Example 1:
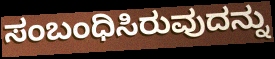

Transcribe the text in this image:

ಸಂಬಂಧಿಸಿರುವುದನ್ನು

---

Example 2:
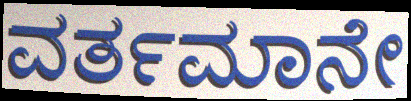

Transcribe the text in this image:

ವರ್ತಮಾನೇ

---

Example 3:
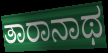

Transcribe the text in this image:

ತಾರಾನಾಥ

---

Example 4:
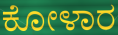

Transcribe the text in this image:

ಕೋಳಾರ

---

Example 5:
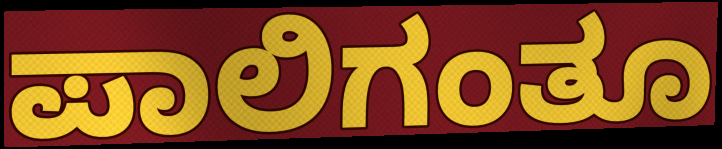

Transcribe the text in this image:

ಪಾಲಿಗಂತೂ